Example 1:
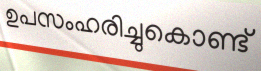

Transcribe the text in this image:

ഉപസംഹരിച്ചുകൊണ്ട്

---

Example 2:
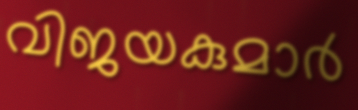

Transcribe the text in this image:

വിജയകുമാർ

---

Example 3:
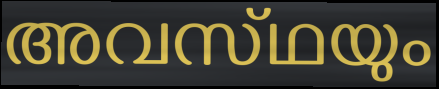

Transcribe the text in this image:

അവസ്‌ഥയും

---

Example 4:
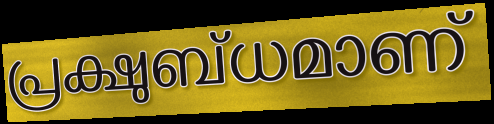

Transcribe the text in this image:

പ്രക്ഷുബ്ധമാണ്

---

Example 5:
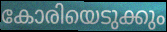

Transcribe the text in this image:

കോരിയെടുക്കും